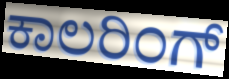
ಕಾಲರಿಂಗ್